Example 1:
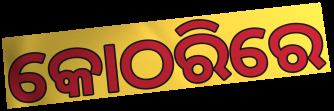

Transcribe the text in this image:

କୋଠରିରେ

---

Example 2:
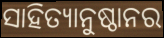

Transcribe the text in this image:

ସାହିତ୍ୟାନୁଷ୍ଠାନର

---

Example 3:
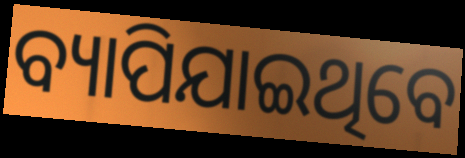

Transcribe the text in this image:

ବ୍ୟାପିଯାଇଥିବେ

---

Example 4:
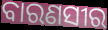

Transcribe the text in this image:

ବାରଣସୀର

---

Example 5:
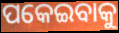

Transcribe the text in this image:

ପକେଇବାକୁ